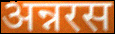
अन्नरस